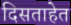
दिसताहेत